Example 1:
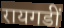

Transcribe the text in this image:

रायगडीं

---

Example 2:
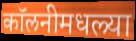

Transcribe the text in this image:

कॉलनीमधल्या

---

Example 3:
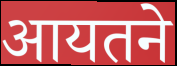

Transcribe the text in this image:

आयतने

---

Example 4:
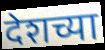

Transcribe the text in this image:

देशच्या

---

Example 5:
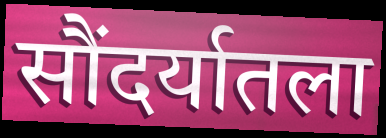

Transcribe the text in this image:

सौंदर्यातला